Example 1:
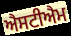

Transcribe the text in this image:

ਐਸਟੀਐਮ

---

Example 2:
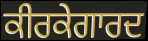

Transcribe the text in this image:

ਕੀਰਕੇਗਾਰਦ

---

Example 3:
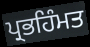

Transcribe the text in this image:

ਪ੍ਰਭਹਿੰਮਤ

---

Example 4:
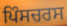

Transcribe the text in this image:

ਪਿੰਸਚਰਸ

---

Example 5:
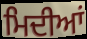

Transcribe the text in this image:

ਮਿਦੀਆਂ